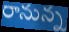
రానున్న